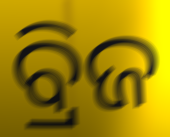
ବ୍ରିଜ